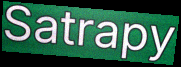
Satrapy